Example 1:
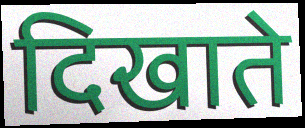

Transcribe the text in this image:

दिखाते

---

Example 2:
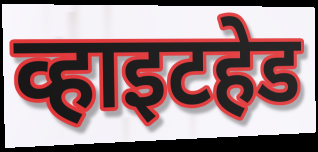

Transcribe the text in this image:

व्हाइटहेड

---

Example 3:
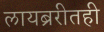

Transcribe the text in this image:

लायब्ररीतही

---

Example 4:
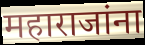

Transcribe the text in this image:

महाराजांना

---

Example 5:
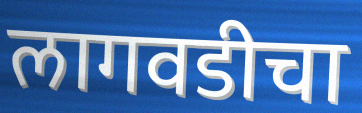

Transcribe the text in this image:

लागवडीचा